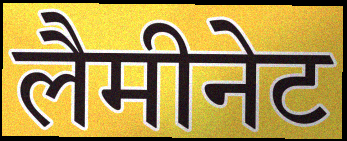
लैमीनेट